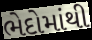
ભેદોમાંથી